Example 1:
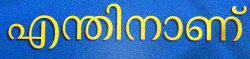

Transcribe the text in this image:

എന്തിനാണ്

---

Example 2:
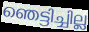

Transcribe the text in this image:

ഞെട്ടിച്ചില്ല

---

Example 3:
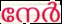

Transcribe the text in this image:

നേർ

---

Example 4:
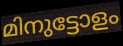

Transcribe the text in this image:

മിനുട്ടോളം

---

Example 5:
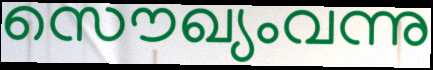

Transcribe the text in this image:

സൌഖ്യംവന്നു